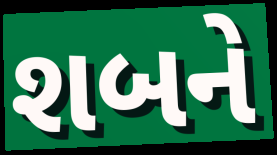
શબને